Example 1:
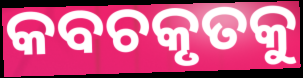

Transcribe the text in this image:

କବଚକୃତକୁ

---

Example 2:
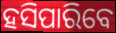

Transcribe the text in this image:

ହସିପାରିବେ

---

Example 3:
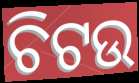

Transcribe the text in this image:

ଚିଟଉ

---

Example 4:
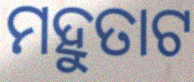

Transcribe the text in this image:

ମହୁତାଟ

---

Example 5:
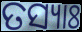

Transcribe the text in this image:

ତସ୍ୟାଃ